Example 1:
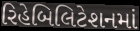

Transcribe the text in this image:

રિહેબિલિટેશનમાં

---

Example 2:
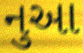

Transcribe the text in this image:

નુઆ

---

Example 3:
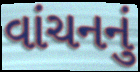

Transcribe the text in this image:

વાંચનનું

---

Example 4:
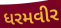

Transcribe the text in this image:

ધરમવીર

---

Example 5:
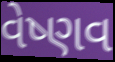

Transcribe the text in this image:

વેષ્ણવ